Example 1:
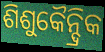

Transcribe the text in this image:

ଶିଶୁକୈନ୍ଦ୍ରିକ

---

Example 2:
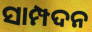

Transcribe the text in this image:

ସାମ୍ପଦନ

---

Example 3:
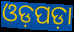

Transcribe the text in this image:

ଓଡ଼ପଡ଼ା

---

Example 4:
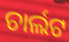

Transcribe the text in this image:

ଚାର୍ଲଟ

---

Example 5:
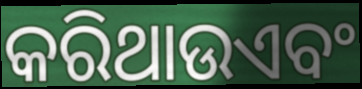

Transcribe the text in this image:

କରିଥାଉଏବଂ